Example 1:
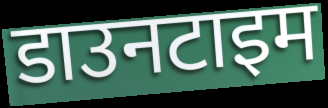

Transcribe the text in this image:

डाउनटाइम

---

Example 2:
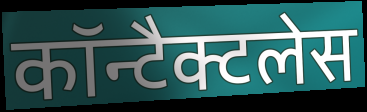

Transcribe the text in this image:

कॉन्टैक्टलेस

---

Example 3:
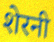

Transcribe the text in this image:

शेरनी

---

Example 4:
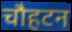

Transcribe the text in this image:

चौहटन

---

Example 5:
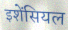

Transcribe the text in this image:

इशेंसियल